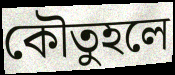
কৌতুহলে